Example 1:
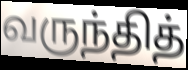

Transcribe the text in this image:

வருந்தித்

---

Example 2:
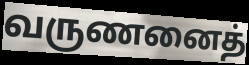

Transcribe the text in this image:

வருணனைத்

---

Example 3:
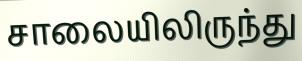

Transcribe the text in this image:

சாலையிலிருந்து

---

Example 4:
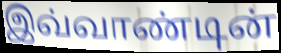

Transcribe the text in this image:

இவ்வாண்டின்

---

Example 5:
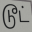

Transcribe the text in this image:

டூட்